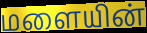
மளையின்